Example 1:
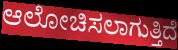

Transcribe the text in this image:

ಆಲೋಚಿಸಲಾಗುತ್ತಿದೆ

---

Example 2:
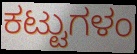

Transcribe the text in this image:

ಕಟ್ಟುಗಳಂ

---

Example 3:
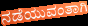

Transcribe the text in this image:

ನಡೆಯುವಂತಾಗಿ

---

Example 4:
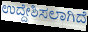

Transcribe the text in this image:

ಉದ್ದೇಶಿಸಲಾಗಿದೆ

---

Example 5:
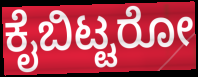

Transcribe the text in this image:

ಕೈಬಿಟ್ಟರೋ